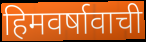
हिमवर्षावाची